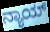
ನ್ಯಾಯ್